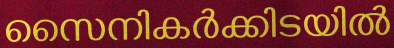
സൈനികർക്കിടയിൽ